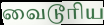
வைடூரிய